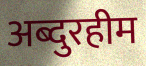
अब्दुरहीम